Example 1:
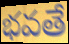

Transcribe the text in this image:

భవతే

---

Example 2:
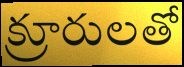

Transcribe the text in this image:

క్రూరులతో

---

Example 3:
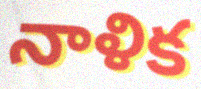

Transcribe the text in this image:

నాళిక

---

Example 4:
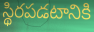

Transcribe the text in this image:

స్థిరపడటానికి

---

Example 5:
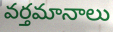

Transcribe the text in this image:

వర్తమానాలు